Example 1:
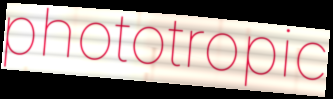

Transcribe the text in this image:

phototropic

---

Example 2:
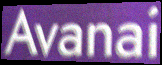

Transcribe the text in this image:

Avanai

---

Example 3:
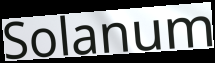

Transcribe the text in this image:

Solanum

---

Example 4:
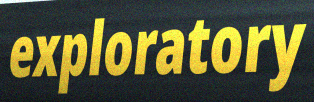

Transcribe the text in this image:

exploratory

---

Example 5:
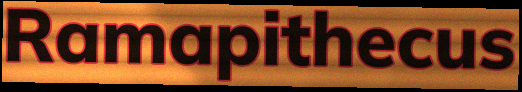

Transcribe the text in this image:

Ramapithecus